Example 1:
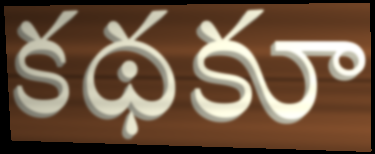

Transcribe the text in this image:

కథకూ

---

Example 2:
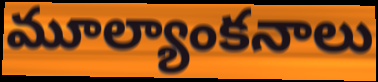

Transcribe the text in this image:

మూల్యాంకనాలు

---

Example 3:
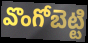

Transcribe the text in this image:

వొంగోబెట్టి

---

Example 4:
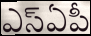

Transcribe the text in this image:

ఎస్ఏపీ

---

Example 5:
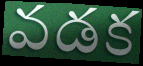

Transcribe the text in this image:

వడక